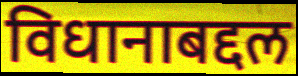
विधानाबद्दल